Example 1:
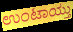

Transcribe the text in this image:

ಉಂಟಾಯ್ತು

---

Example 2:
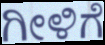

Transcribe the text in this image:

ಗೀಳಿಗೆ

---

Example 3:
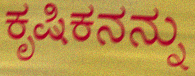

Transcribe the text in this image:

ಕೃಷಿಕನನ್ನು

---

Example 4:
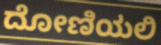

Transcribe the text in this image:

ದೋಣಿಯಲಿ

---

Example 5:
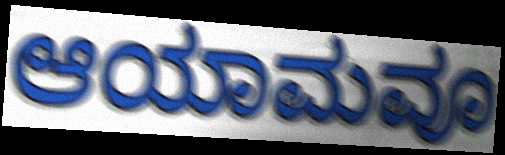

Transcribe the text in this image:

ಆಯಾಮವೂ